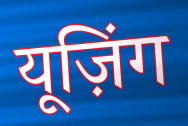
यूज़िंग